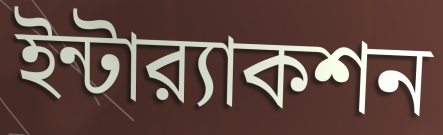
ইন্টার‍্যাকশন